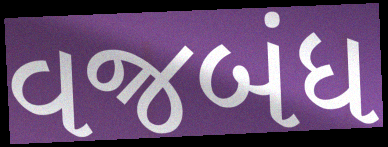
વજ્રબંધ